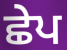
ਛੇਪ